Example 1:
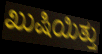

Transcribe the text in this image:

ಖುಷಿಯಿತ್ತು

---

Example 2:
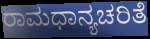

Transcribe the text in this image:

ರಾಮಧಾನ್ಯಚರಿತೆ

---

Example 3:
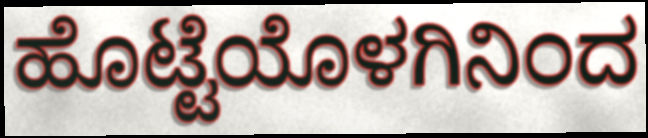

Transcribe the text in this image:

ಹೊಟ್ಟೆಯೊಳಗಿನಿಂದ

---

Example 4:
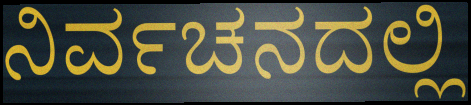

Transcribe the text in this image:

ನಿರ್ವಚನದಲ್ಲಿ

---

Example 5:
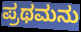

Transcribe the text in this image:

ಪ್ರಥಮನು